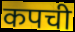
कपची